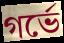
গর্ভে